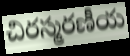
చిరస్మరణీయ